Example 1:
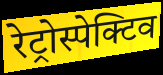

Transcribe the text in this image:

रेट्रोस्पेक्टिव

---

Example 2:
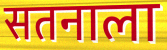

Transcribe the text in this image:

सतनाला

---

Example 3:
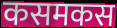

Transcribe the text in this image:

कसमकस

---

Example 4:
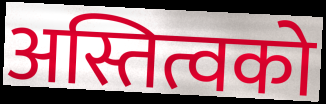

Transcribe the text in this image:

अस्तित्वको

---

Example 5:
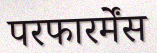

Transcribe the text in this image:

परफारर्मेंस